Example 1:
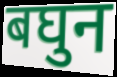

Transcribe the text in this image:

बघुन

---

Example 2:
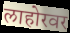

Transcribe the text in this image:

लाहोरवर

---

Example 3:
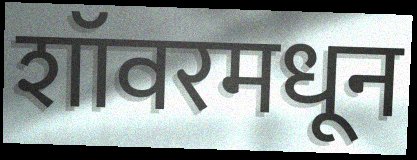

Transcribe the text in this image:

शॉवरमधून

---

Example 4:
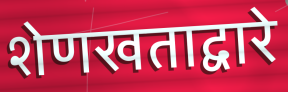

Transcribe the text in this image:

शेणखताद्वारे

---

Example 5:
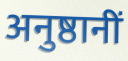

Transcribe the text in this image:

अनुष्ठानीं